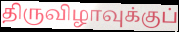
திருவிழாவுக்குப்